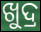
ଖୁଦ୍ର